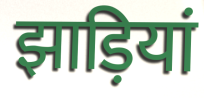
झाड़ियां